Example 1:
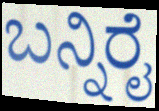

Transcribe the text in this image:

ಬನ್ನಿರೈ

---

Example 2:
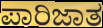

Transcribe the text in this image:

ಪಾರಿಜಾತ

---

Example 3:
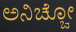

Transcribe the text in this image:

ಅನಿಚ್ಚೋ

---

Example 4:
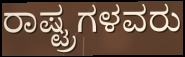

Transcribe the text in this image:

ರಾಷ್ಟ್ರಗಳವರು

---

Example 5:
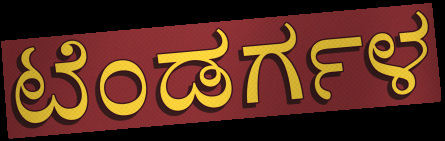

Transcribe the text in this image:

ಟೆಂಡರ್ಗಳ